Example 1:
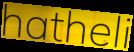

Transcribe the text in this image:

hatheli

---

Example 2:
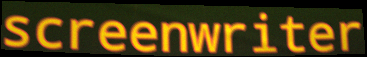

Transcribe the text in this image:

screenwriter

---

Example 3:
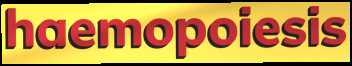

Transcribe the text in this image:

haemopoiesis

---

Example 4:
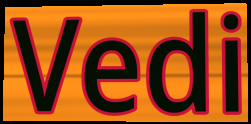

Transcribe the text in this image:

Vedi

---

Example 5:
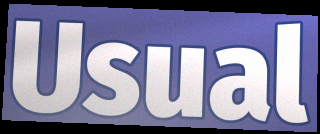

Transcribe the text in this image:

Usual